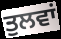
ਤੁਲਵਾਂ